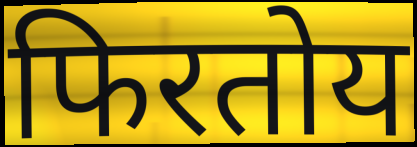
फिरतोय